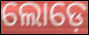
ଲୋଡ଼େ